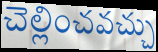
చెల్లించవచ్చు